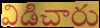
విడిచారు